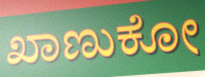
ಖಾಣುಕೋ